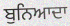
ਬੁਨਿਆਦਾ